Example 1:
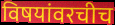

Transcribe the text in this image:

विषयांवरचीच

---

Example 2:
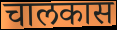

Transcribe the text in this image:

चालकास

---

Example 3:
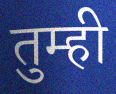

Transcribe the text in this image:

तुम्ही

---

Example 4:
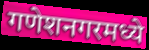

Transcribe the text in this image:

गणेशनगरमध्ये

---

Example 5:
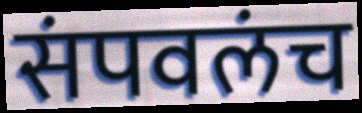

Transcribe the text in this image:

संपवलंच